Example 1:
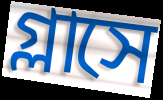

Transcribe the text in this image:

গ্লাসে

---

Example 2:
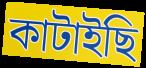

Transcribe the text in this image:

কাটাইছি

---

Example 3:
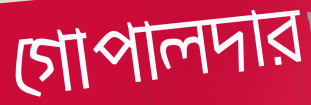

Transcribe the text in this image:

গোপালদার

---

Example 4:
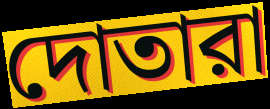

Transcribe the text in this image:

দোতারা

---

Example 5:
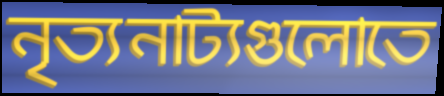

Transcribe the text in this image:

নৃত্যনাট্যগুলোতে